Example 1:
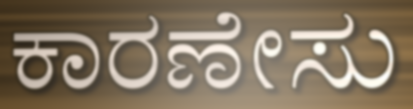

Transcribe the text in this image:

ಕಾರಣೇಸು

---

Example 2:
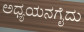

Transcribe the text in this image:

ಅಧ್ಯಯನಗೈದು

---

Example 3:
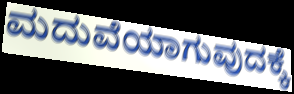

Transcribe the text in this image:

ಮದುವೆಯಾಗುವುದಕ್ಕೆ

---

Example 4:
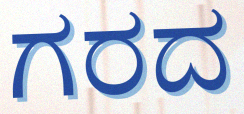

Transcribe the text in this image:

ಗರದ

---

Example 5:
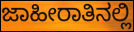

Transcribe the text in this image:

ಜಾಹೀರಾತಿನಲ್ಲಿ